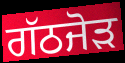
ਗੱਠਜੋੜ